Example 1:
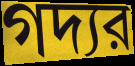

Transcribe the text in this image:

গদ্যর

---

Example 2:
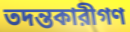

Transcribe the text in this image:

তদন্তকারীগণ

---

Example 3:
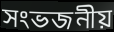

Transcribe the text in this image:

সংভজনীয়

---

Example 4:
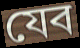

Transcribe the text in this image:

যেব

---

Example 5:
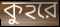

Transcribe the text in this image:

কুহরে